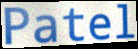
Patel